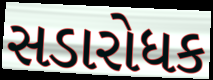
સડારોધક